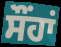
ਸੌਂਹਾਂ